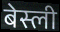
बेस्ली